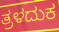
ತ್ರಳದುಕ